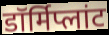
डॉर्मिप्लांट